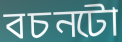
বচনটো